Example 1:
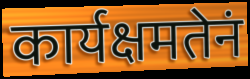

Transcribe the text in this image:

कार्यक्षमतेनं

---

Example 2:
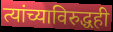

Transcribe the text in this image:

त्यांच्याविरुद्धही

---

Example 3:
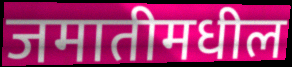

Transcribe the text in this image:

जमातीमधील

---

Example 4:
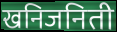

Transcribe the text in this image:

खनिजनिती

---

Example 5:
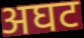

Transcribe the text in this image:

अघट